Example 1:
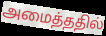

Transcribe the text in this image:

அமைத்ததில்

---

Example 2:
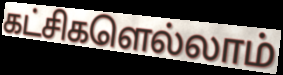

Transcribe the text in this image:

கட்சிகளெல்லாம்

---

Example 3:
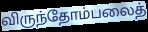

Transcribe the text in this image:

விருந்தோம்பலைத்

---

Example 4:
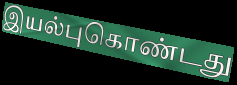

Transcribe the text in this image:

இயல்புகொண்டது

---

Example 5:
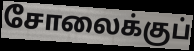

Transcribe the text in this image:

சோலைக்குப்